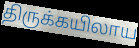
திருக்கயிலாய